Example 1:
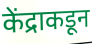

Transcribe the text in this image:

केंद्राकडून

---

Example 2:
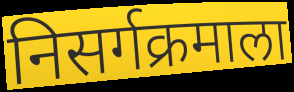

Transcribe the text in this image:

निसर्गक्रमाला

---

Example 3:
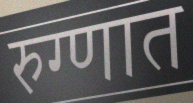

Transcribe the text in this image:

रुग्णात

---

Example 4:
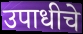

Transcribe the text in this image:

उपाधीचे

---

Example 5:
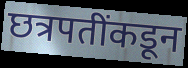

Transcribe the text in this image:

छत्रपतींकडून